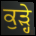
ਕੁੜ੍ਹੇ